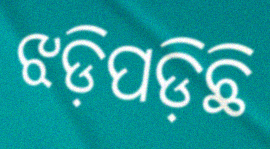
ଝଡ଼ିପଡ଼ିଛି